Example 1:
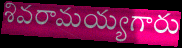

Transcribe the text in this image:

శివరామయ్యగారు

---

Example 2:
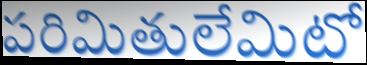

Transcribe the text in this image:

పరిమితులేమిటో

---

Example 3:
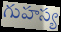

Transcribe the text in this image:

గుహస్య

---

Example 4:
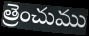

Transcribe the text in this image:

త్రెంచుము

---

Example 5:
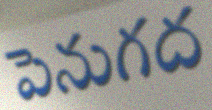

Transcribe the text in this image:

పెనుగద